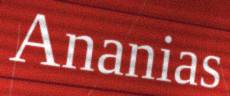
Ananias